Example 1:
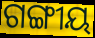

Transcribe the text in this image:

ଗଙ୍ଗୀୟ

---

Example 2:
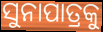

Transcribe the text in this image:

ସୁନାପାତ୍ରକୁ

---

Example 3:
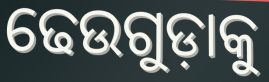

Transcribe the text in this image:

ଢେଉଗୁଡ଼ାକୁ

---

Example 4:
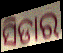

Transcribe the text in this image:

ସିଡାର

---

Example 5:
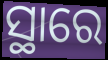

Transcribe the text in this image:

ସ୍ଥାରେ